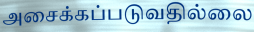
அசைக்கப்படுவதில்லை